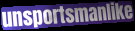
unsportsmanlike